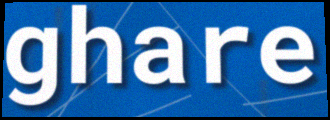
ghare